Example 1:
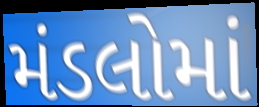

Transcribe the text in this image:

મંડલોમાં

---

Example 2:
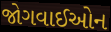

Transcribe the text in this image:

જોગવાઈઓન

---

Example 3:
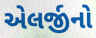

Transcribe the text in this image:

એલર્જીનો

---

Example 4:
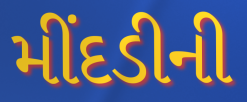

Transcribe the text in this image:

મીંદડીની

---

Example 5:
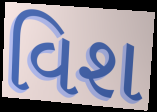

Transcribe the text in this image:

વિશ